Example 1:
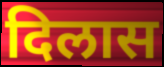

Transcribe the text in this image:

दिलास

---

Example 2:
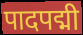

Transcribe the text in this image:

पादपद्मी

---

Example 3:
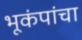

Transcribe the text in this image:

भूकंपांचा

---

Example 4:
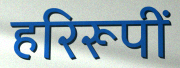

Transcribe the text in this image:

हरिरूपीं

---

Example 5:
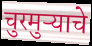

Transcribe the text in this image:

चुरमुऱ्याचे